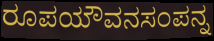
ರೂಪಯೌವನಸಂಪನ್ನ